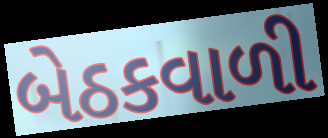
બેઠકવાળી